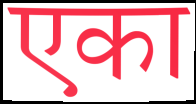
एका